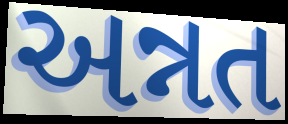
અન્નત